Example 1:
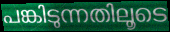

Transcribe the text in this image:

പങ്കിടുന്നതിലൂടെ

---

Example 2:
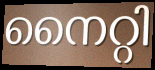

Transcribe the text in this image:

നൈറ്റി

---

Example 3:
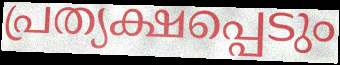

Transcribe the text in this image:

പ്രത്യക്ഷപ്പെടും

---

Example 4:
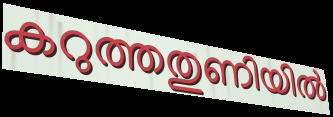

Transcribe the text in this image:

കറുത്തതുണിയിൽ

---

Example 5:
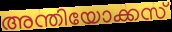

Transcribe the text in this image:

അന്തിയോക്കസ്